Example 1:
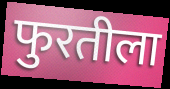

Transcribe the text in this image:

फुरतीला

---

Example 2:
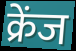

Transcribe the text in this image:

क्रेंज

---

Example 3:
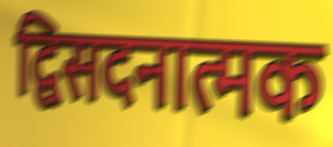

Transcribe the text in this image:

द्विसदनात्मक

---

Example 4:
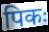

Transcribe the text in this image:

पिकः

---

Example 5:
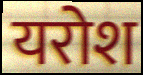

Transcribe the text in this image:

यरोश